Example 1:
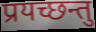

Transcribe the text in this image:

प्रयच्छन्तु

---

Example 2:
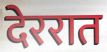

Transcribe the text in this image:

देररात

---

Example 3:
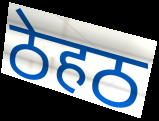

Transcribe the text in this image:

ठेहठ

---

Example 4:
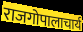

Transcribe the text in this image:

राजगोपालाचार्य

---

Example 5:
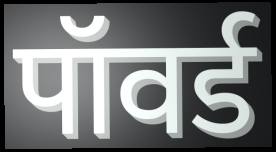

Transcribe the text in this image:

पॉवर्ड